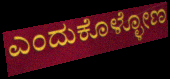
ಎಂದುಕೊಳ್ಳೋಣ